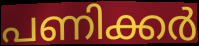
പണിക്കർ